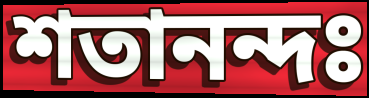
শতানন্দঃ